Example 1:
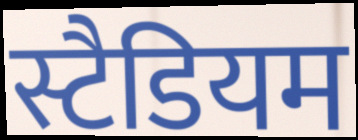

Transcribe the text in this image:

स्टैडियम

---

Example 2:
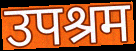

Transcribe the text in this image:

उपश्रम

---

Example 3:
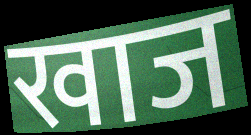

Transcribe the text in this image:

खाज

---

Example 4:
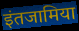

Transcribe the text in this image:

इंतजामिया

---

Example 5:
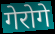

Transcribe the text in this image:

गेरोगे